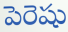
పెరెషు